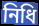
নিধি